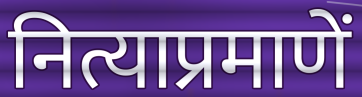
नित्याप्रमाणें